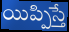
యిప్పిస్తే